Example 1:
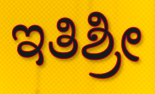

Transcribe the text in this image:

ಇತಿಶ್ರೀ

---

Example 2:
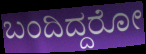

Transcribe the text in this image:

ಬಂದಿದ್ದರೋ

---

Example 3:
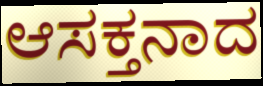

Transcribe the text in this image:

ಆಸಕ್ತನಾದ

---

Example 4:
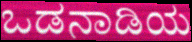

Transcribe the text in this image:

ಒಡನಾಡಿಯ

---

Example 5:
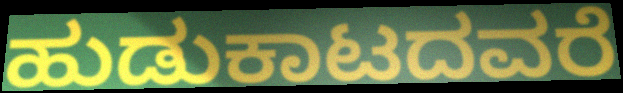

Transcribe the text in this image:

ಹುಡುಕಾಟದವರೆ